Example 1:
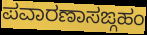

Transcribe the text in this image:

ಪವಾರಣಾಸಙ್ಗಹಂ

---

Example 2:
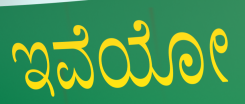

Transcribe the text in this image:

ಇವೆಯೋ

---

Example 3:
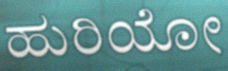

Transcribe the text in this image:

ಹುರಿಯೋ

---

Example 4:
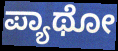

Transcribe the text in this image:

ಪ್ಯಾಥೋ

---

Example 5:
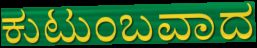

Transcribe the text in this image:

ಕುಟುಂಬವಾದ